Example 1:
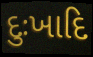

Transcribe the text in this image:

દુઃખાદિ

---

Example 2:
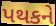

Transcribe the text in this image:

પથકને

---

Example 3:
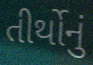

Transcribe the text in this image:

તીર્થોનું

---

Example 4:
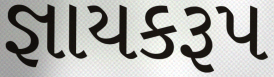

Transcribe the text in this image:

જ્ઞાયકરૂપ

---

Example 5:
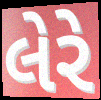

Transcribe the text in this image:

લેરે